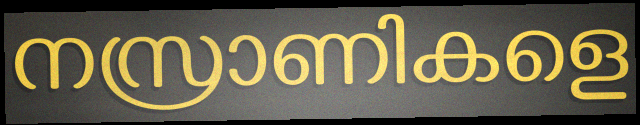
നസ്രാണികളെ